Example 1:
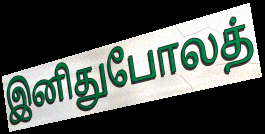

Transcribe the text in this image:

இனிதுபோலத்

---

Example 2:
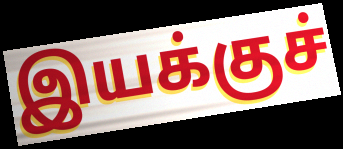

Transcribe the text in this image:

இயக்குச்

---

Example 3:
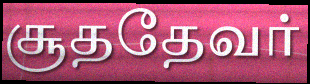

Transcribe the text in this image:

சூததேவர்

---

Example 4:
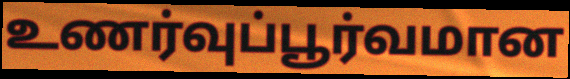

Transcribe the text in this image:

உணர்வுப்பூர்வமான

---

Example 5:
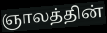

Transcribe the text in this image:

ஞாலத்தின்